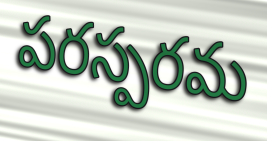
పరస్పరమ